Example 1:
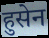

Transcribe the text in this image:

हुसेन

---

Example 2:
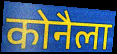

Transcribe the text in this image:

कोनैला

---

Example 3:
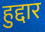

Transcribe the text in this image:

हुद्दार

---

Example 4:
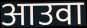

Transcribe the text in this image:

आउवा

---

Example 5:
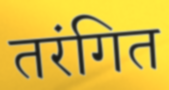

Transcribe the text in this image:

तरंगित